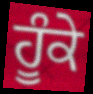
ਹੂੰਕੇ